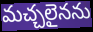
మచ్చలైనను